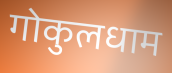
गोकुलधाम